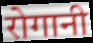
रोगानी